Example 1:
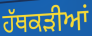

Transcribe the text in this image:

ਹੱਥਕੜੀਆਂ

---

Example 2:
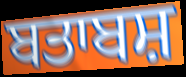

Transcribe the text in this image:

ਬਤਾਬਸ਼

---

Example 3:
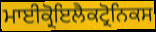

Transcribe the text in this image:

ਮਾਈਕ੍ਰੋਇਲੈਕਟ੍ਰੋਨਿਕਸ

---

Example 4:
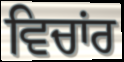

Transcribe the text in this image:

ਵਿਚਾਂਰ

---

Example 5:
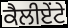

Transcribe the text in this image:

ਕੈਲੀਏਂਟੇ